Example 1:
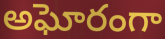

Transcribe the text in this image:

అఘోరంగా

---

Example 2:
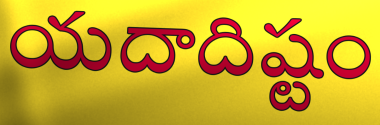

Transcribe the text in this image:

యదాదిష్టం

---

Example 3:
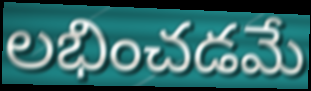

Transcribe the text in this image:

లభించడమే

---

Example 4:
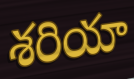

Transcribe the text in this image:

శరియా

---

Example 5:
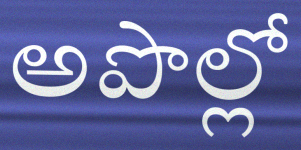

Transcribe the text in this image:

అపొల్లో